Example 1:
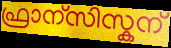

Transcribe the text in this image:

ഫ്രാന്സിസ്കന്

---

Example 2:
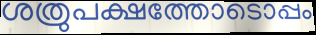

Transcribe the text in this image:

ശത്രുപക്ഷത്തോടൊപ്പം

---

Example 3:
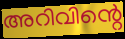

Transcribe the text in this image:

അറിവിന്റെ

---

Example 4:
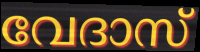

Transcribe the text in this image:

വേദാസ്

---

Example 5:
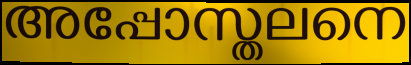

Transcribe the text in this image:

അപ്പോസ്തലനെ